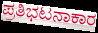
ಪ್ರತಿಭಟನಾಕಾರ